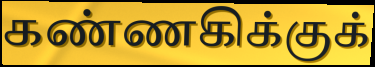
கண்ணகிக்குக்